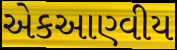
એકઆણ્વીય